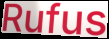
Rufus